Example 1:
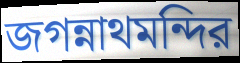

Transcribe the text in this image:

জগন্নাথমন্দির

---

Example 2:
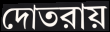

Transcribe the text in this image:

দোতরায়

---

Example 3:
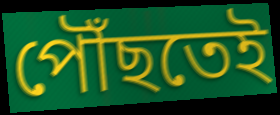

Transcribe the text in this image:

পৌঁছতেই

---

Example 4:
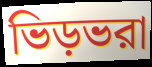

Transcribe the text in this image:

ভিড়ভরা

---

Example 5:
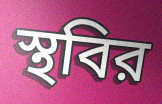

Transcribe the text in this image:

স্থবির